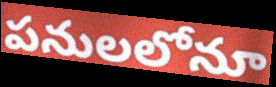
పనులలోనూ